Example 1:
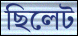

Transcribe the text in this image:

ছিলেট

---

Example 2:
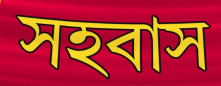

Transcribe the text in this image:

সহবাস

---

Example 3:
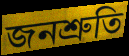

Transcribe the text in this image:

জনশ্ৰুতি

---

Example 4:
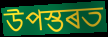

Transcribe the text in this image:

উপস্তৰত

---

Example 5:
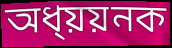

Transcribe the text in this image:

অধ্য়য়নক